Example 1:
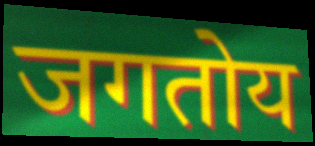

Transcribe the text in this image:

जगतोय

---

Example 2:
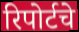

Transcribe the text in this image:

रिपोर्टचे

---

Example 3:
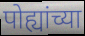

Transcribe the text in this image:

पोह्यांच्या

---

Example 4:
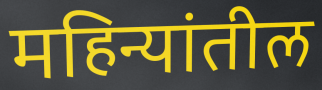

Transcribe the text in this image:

महिन्यांतील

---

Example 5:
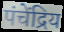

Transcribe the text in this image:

पंचेंद्रिय